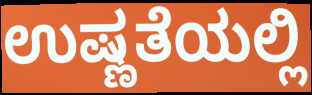
ಉಷ್ಣತೆಯಲ್ಲಿ